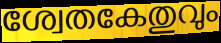
ശ്വേതകേതുവും